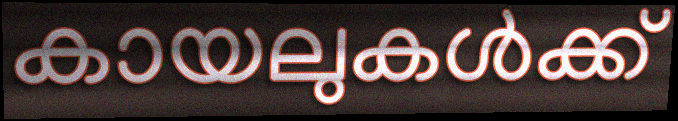
കായലുകൾക്ക്